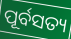
ପୂର୍ବସତ୍ୟ